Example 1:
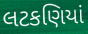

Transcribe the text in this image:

લટકણિયાં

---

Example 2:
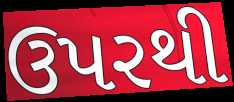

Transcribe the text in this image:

ઉપરથી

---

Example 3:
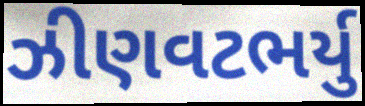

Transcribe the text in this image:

ઝીણવટભર્યુ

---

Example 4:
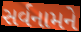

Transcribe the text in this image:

સર્વનામને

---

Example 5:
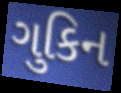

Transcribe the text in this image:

ગુકિન